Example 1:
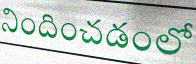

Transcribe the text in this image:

నిందించడంలో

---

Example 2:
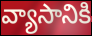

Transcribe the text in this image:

వ్యాసానికి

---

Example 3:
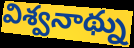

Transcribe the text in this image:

విశ్వనాథ్ను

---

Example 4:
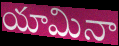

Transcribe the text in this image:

యామినా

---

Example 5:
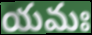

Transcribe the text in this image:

యమః